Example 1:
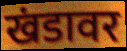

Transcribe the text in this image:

खंडावर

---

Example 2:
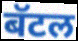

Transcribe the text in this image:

बॅटल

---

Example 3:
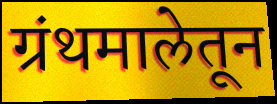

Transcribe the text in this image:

ग्रंथमालेतून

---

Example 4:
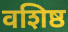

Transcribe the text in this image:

वशिष्ठ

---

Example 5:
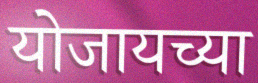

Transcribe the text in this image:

योजायच्या